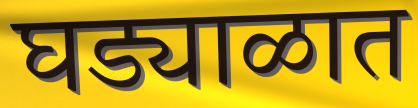
घड्याळात